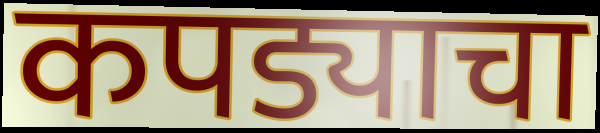
कपड्याचा